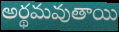
అర్థమవుతాయి